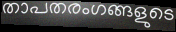
താപതരംഗങ്ങളുടെ